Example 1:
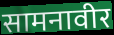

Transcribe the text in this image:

सामनावीर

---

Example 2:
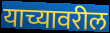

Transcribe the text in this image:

याच्यावरील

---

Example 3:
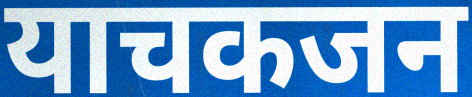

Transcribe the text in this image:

याचकजन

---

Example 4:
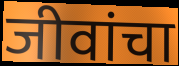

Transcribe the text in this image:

जीवांचा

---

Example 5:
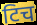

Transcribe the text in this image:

टिच